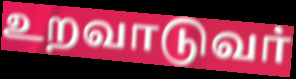
உறவாடுவர்